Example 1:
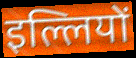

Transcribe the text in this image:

इल्लियों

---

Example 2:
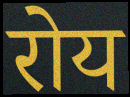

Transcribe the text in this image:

रोय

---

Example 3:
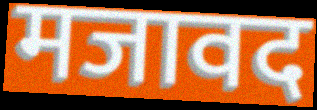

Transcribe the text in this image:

मजावद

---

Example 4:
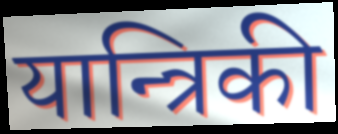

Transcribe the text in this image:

यान्त्रिकी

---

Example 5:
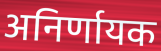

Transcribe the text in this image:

अनिर्णायक